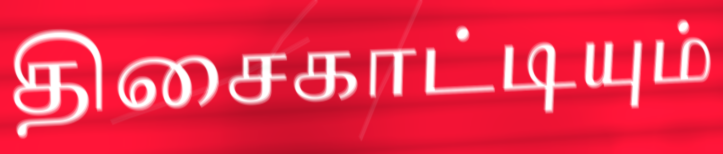
திசைகாட்டியும்